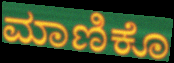
ಮಾಣಿಕೊ